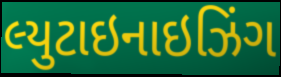
લ્યુટાઇનાઇઝિંગ